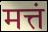
मत्तं